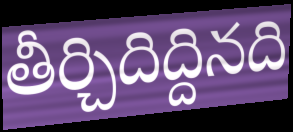
తీర్చిదిద్దినది